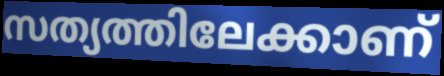
സത്യത്തിലേക്കാണ്